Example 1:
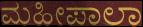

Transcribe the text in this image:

ಮಹೀಪಾಲಾ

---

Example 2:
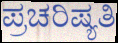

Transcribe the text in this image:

ಪ್ರಚರಿಷ್ಯತಿ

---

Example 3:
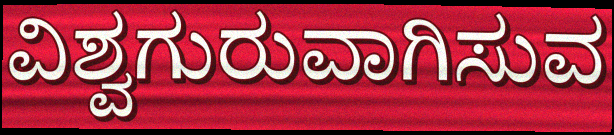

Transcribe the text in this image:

ವಿಶ್ವಗುರುವಾಗಿಸುವ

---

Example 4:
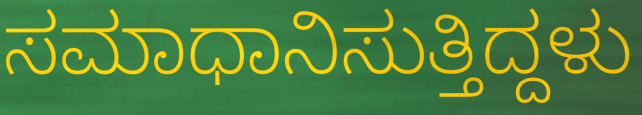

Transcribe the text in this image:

ಸಮಾಧಾನಿಸುತ್ತಿದ್ದಳು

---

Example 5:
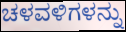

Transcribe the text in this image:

ಚಳವಳಿಗಳನ್ನು